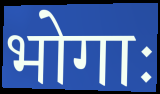
भोगाः